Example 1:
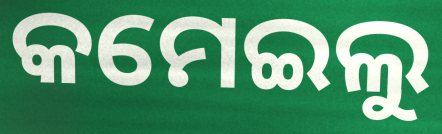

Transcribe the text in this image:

କମେଇଲୁ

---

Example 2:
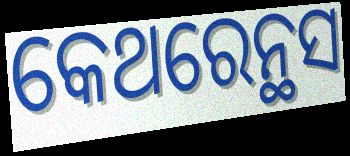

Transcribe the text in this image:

କେଥରେନ୍ଥସ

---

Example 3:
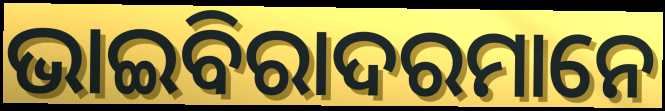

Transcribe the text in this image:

ଭାଇବିରାଦରମାନେ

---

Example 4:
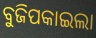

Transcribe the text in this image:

ବୁଜିପକାଇଲା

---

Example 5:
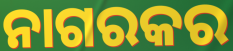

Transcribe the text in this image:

ନାଗରକର